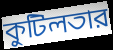
কুটিলতার